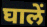
घालें